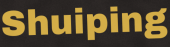
Shuiping